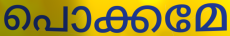
പൊക്കമേ